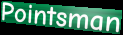
Pointsman